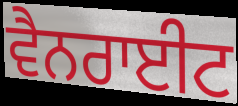
ਵੈਨਰਾਈਟ